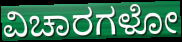
ವಿಚಾರಗಳೋ